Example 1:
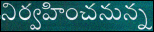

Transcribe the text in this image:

నిర్వహించనున్న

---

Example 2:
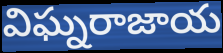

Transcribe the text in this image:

విఘ్నరాజాయ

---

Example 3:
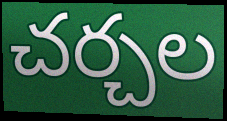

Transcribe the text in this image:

చర్చల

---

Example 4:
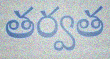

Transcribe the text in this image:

తర్వత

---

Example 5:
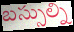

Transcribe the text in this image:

బస్సుల్ని